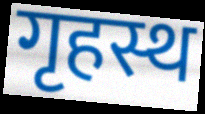
गृहस्थ